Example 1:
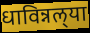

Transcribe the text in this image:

धाविन्नल्या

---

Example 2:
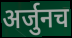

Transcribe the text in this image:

अर्जुनच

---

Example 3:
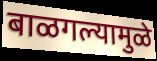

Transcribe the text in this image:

बाळगल्यामुळे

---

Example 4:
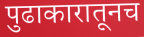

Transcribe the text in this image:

पुढाकारातूनच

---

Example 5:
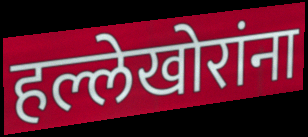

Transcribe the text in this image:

हल्लेखोरांना